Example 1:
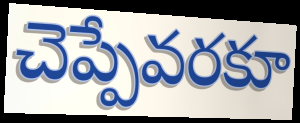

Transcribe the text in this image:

చెప్పేవరకూ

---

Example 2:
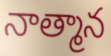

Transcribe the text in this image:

నాత్మాన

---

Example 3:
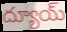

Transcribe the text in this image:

ద్యూయ్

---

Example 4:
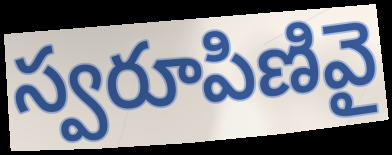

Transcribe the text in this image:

స్వరూపిణివై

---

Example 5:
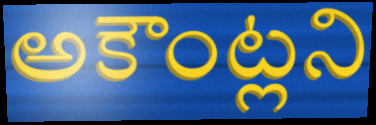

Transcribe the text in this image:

అకౌంట్లని